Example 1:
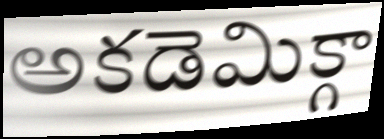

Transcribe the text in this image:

అకడెమిక్గా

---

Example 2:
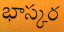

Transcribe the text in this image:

భాస్కర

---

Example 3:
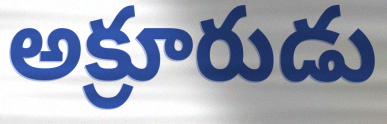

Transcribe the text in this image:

అక్రూరుడు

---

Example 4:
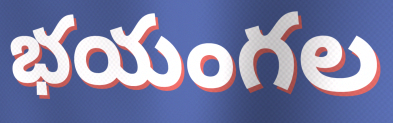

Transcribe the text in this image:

భయంగల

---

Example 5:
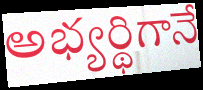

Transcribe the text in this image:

అభ్యర్థిగానే